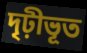
দৃঢ়ীভূত